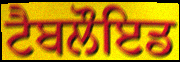
ਟੈਬਲੌਇਡ